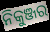
ନିକୁଞ୍ଜର